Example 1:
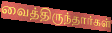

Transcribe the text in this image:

வைத்திருந்தார்கள்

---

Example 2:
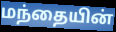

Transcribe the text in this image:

மந்தையின்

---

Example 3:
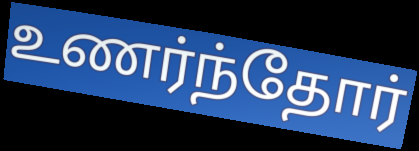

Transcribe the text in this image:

உணர்ந்தோர்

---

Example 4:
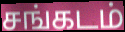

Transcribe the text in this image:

சங்கடம்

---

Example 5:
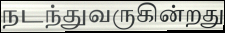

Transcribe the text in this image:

நடந்துவருகின்றது